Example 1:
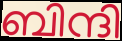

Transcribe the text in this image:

ബിന്ദി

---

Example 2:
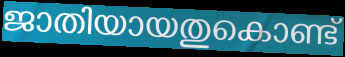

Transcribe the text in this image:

ജാതിയായതുകൊണ്ട്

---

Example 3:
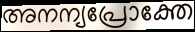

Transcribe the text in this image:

അനന്യപ്രോക്തേ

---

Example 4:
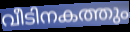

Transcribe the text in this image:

വീടിനകത്തും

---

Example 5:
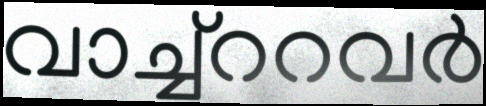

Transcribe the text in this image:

വാച്ച്ററവർ